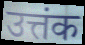
उत्तंक